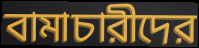
বামাচারীদের